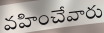
వహించేవారు